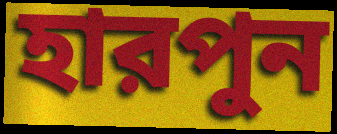
হারপুন